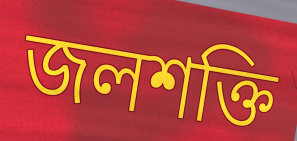
জলশক্তি